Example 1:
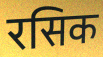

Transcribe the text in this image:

रसिक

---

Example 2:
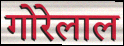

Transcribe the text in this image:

गोरेलाल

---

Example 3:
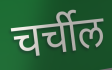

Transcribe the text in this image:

चर्चील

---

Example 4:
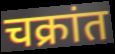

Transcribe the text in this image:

चक्रांत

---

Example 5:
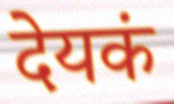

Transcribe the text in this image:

देयकं